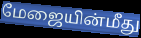
மேஜையின்மீது